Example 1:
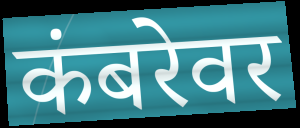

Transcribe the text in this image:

कंबरेवर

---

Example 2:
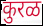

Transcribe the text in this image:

कुरळ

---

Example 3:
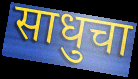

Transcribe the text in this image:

साधुचा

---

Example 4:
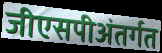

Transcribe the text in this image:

जीएसपीअंतर्गत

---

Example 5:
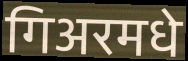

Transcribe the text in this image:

गिअरमधे